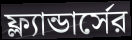
ফ্ল্যান্ডার্সের